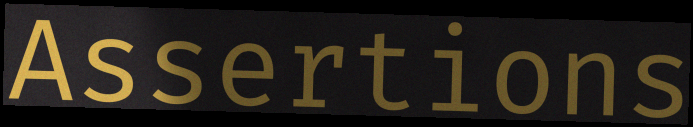
Assertions